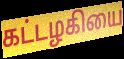
கட்டழகியை